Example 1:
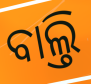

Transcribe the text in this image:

ବାଲ୍ତି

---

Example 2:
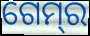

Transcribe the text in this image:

ଗେମ୍‌ର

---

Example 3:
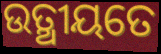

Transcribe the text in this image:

ଉତ୍ଥୀୟତେ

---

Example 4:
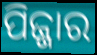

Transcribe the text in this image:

ପିଜ୍ଜାର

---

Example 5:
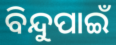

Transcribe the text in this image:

ବିନ୍ଦୁପାଇଁ